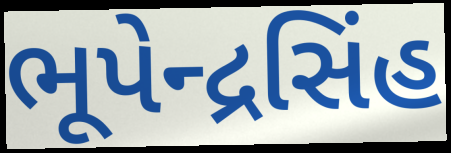
ભૂપેન્દ્રસિંહ